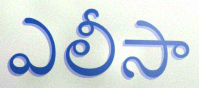
ఎలీసా